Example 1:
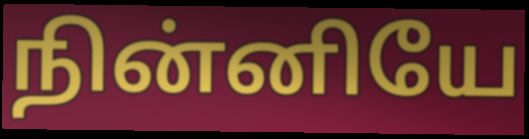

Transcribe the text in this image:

நின்னியே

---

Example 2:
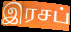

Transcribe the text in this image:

இரசப்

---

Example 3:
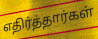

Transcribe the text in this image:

எதிர்த்தார்கள்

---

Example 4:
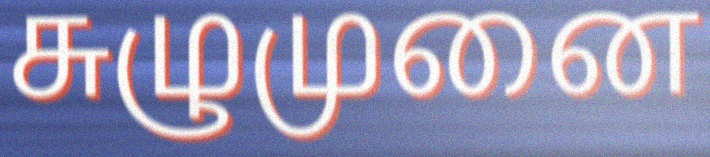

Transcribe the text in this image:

சுழுமுனை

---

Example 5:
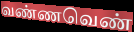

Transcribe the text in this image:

வண்ணவெண்